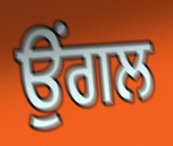
ਉੰਗਲ